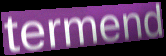
termend